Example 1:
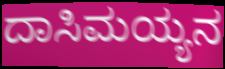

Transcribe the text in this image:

ದಾಸಿಮಯ್ಯನ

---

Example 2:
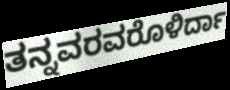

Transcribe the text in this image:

ತನ್ನವರವರೊಳಿರ್ದಾ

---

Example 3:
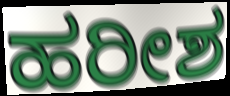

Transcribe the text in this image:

ಹರೀಶ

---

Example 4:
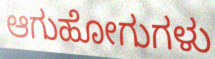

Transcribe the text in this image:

ಆಗುಹೋಗುಗಳು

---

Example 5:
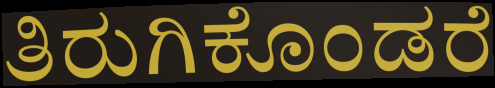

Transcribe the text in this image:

ತಿರುಗಿಕೊಂಡರೆ